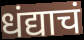
धंद्याचं